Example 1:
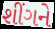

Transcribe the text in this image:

શીંગને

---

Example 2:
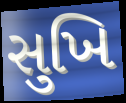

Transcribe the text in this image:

સુખિ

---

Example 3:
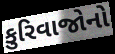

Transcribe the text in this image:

કુરિવાજોનો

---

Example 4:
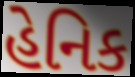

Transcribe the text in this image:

હેનિક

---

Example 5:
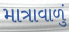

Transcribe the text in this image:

માત્રાવાળું